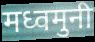
मध्वमुनी